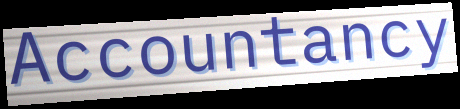
Accountancy